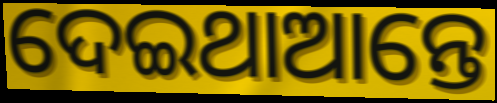
ଦେଇଥାଆନ୍ତେ